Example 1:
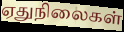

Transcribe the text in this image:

ஏதுநிலைகள்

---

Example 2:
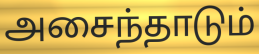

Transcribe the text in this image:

அசைந்தாடும்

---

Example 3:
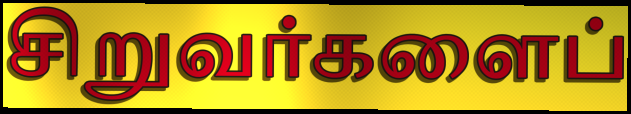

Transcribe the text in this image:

சிறுவர்களைப்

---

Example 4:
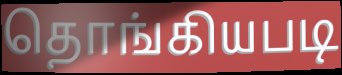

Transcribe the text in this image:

தொங்கியபடி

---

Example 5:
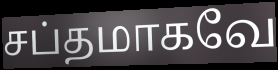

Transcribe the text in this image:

சப்தமாகவே